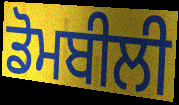
ਡੋਮਬੀਲੀ